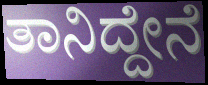
ತಾನಿದ್ದೇನೆ